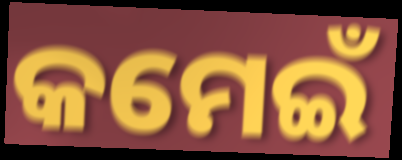
କମେଇଁ